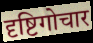
दृष्टिगोचार